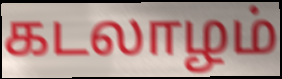
கடலாழம்